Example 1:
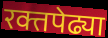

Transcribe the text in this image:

रक्तपेढ्या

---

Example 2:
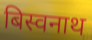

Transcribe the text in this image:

बिस्वनाथ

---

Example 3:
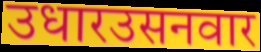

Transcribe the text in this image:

उधारउसनवार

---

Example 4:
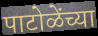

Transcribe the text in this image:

पाटोळेंच्या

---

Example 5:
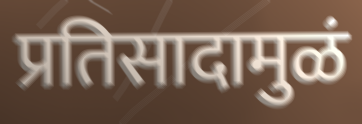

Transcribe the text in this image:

प्रतिसादामुळं